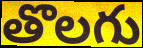
తొలగు